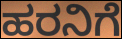
ಹರನಿಗೆ